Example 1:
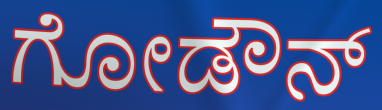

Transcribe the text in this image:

ಗೋಡೌನ್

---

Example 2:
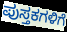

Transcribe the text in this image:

ಪುಸ್ತಕಗಳಿಗೆ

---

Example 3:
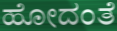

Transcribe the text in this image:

ಹೋದಂತೆ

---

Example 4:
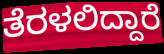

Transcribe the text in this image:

ತೆರಳಲಿದ್ದಾರೆ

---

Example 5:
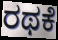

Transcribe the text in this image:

ರಥಕೆ